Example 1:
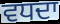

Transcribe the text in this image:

ਵਧਦਾ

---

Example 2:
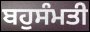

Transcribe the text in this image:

ਬਹੁਸੰਮਤੀ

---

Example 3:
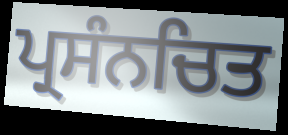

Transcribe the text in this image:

ਪ੍ਰਸੰਨਚਿਤ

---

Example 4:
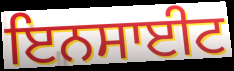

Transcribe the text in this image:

ਇਨਸਾਈਟ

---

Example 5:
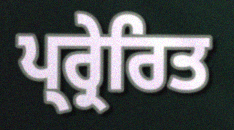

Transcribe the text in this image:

ਪ੍ਰ੍ਰੇਰਿਤ